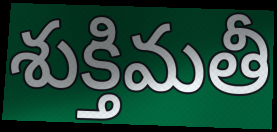
శుక్తిమతీ